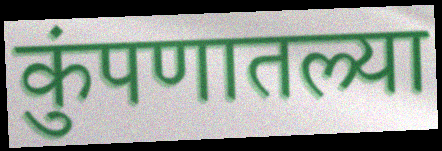
कुंपणातल्या